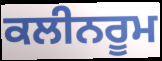
ਕਲੀਨਰੂਮ